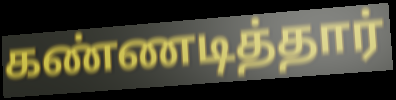
கண்ணடித்தார்